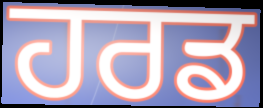
ਹਰਡ